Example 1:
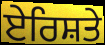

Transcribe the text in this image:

ਏਰਿਸ਼ਤੇ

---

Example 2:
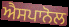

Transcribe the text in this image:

ਐਸਪਾਨੋਲ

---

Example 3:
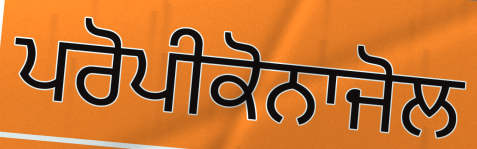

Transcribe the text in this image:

ਪਰੋਪੀਕੋਨਾਜੋਲ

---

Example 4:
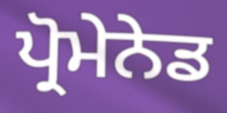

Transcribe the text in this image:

ਪ੍ਰੋਮੇਨੇਡ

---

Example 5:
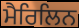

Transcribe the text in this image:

ਮੈਰਿਲਿਨ